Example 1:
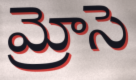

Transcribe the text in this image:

మ్రోసె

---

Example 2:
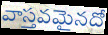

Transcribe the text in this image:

వాస్తవమైనదో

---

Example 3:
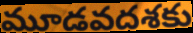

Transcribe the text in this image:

మూడవదశకు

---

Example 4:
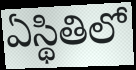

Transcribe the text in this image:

ఏస్థితిలో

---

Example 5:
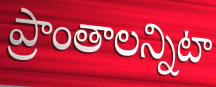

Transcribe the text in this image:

ప్రాంతాలన్నిటా